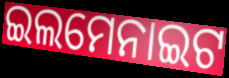
ଇଲମେନାଇଟ